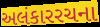
અલંકારરચના